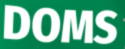
DOMS